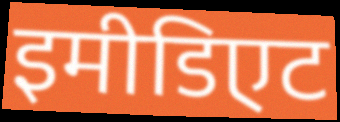
इमीडिएट